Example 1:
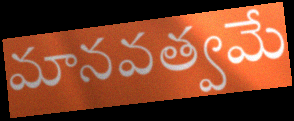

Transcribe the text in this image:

మానవత్వమే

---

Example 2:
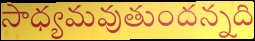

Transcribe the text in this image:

సాధ్యమవుతుందన్నది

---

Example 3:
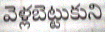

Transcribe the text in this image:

వెళ్లబెట్టుకుని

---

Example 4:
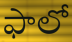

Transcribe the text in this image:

ఫాలో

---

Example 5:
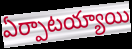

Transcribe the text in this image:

ఏర్పాటయ్యాయి